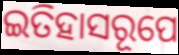
ଇତିହାସରୂପେ